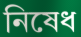
নিষেধ